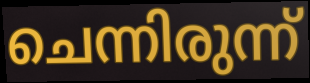
ചെന്നിരുന്ന്